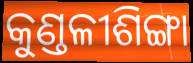
କୁଣ୍ଡଳୀଶିଙ୍ଗା